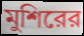
মুশিরের